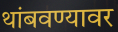
थांबवण्यावर